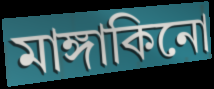
মাঙ্গাকিনো